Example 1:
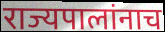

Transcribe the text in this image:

राज्यपालांनाच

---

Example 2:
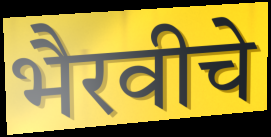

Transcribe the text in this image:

भैरवीचे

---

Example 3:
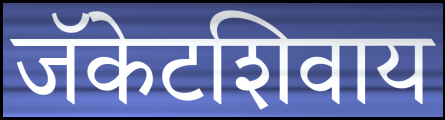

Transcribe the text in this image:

जॅकेटशिवाय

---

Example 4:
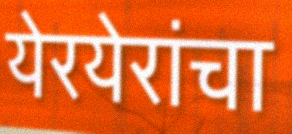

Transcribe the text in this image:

येरयेरांचा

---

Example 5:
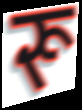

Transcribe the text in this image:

रू